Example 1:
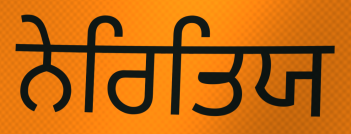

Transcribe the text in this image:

ਨੇਰਿਤਿਯ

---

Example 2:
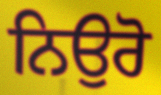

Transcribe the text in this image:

ਨਿਉਰੋ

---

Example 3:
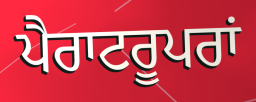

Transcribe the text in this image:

ਪੈਰਾਟਰੂਪਰਾਂ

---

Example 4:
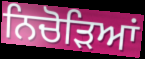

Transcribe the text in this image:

ਨਿਚੋੜਿਆਂ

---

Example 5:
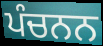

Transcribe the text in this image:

ਪੰਚਨਨ